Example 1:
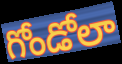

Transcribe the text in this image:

గోండోలా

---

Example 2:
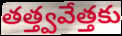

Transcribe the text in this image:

తత్త్వవేత్తకు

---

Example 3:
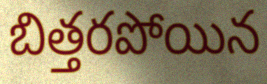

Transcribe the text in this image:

బిత్తరపోయిన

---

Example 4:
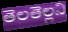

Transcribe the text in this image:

తెలతెల్లని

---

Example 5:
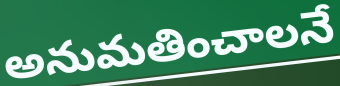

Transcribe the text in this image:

అనుమతించాలనే